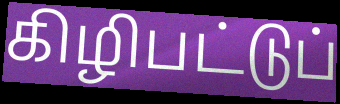
கிழிபட்டுப்